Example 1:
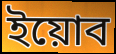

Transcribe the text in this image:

ইয়োব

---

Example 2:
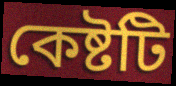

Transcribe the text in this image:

কেষ্টটি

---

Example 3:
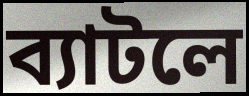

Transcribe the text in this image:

ব্যাটলে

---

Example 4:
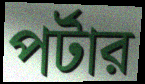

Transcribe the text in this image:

পর্টার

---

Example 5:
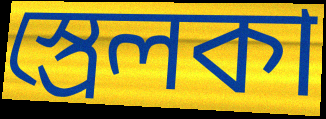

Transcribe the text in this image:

স্ত্রেলকা